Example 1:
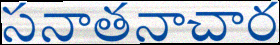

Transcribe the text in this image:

సనాతనాచార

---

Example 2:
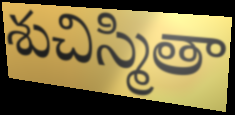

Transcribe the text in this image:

శుచిస్మితా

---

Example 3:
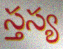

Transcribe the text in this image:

స్తస్య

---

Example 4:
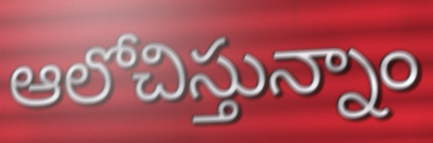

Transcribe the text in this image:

ఆలోచిస్తున్నాం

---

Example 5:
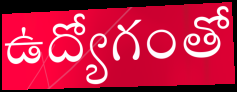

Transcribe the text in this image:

ఉద్యోగంతో